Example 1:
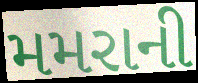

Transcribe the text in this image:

મમરાની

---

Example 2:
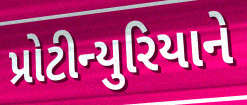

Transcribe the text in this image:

પ્રોટીન્યુરિયાને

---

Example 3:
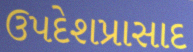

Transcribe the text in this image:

ઉપદેશપ્રાસાદ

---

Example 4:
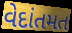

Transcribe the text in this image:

વેદાંતમત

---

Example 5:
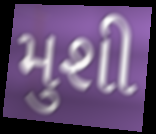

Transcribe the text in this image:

મુશી